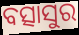
ବତ୍ସାସୁର